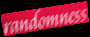
randomness